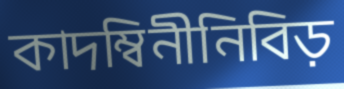
কাদম্বিনীনিবিড়